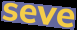
seve